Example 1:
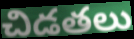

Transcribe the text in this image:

చిడతలు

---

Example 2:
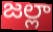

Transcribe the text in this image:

జల్లా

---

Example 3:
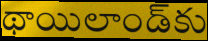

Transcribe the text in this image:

థాయిలాండ్‌కు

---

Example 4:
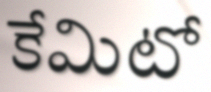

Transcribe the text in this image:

కేమిటో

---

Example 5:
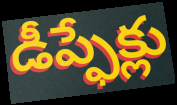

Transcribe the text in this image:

డీప్ఫేక్లు